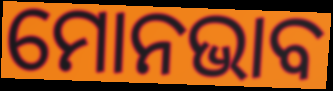
ମୋନଭାବ